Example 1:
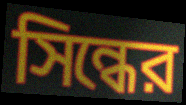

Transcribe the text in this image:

সিন্ধের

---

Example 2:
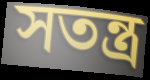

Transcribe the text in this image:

সতন্ত্র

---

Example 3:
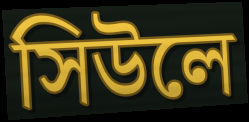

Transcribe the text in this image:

সিউলে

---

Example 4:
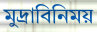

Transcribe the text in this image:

মুদ্রাবিনিময়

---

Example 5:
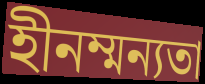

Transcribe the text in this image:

হীনম্মন্যতা